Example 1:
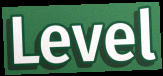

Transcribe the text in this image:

Level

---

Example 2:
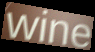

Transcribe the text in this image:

wine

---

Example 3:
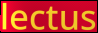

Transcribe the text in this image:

lectus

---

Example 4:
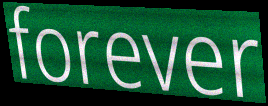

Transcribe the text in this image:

forever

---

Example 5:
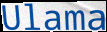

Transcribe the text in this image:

Ulama